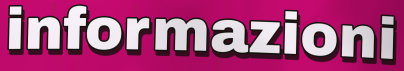
informazioni